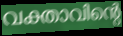
വക്താവിന്റെ